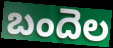
బందెల